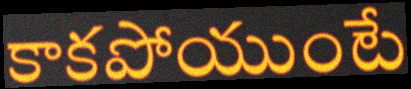
కాకపోయుంటే